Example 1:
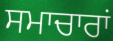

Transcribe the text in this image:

ਸਮਾਚਾਰਾਂ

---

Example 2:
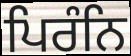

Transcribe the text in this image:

ਪਿਰੰਨਿ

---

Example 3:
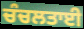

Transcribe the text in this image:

ਚੰਚਲਤਾਈ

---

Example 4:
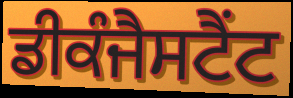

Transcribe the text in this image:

ਡੀਕੰਜੈਸਟੈਂਟ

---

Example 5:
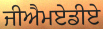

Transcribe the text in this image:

ਜੀਐਮਏਡੀਏ